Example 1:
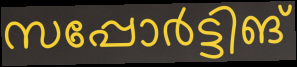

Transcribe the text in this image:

സപ്പോർട്ടിങ്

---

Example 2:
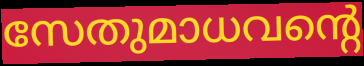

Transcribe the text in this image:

സേതുമാധവന്റെ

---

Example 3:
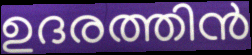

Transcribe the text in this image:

ഉദരത്തിൻ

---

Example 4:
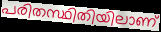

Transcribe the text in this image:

പരിതസ്ഥിതിയിലാണ്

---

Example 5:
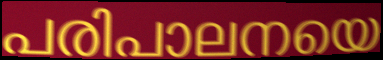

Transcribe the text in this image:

പരിപാലനയെ